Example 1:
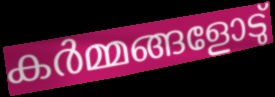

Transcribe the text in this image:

കർമ്മങ്ങളോടു്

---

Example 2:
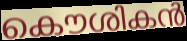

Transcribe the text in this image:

കൌശികൻ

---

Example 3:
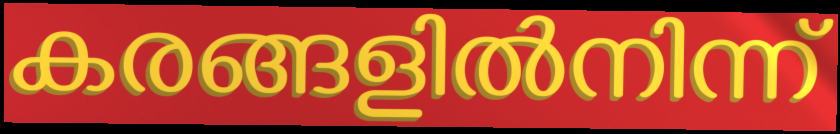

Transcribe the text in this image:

കരങ്ങളിൽനിന്ന്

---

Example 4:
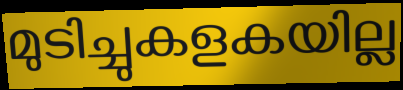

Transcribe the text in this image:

മുടിച്ചുകളകയില്ല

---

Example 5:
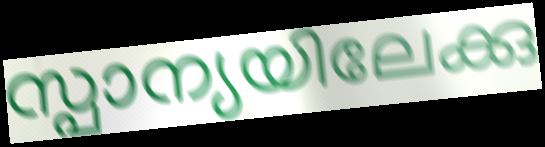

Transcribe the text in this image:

സ്പാന്യയിലേക്കു